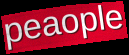
peaople